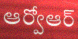
ఆర్వోఆర్